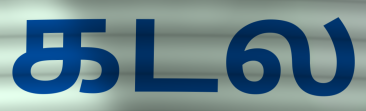
கடல